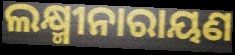
ଲକ୍ଷ୍ମୀନାରାୟଣ